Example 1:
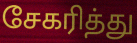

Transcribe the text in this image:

சேகரித்து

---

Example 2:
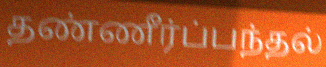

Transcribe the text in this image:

தண்ணீர்ப்பந்தல்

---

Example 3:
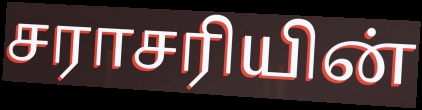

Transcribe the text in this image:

சராசரியின்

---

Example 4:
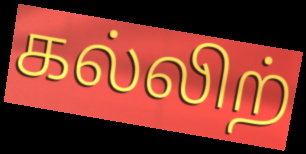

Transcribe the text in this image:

கல்லிற்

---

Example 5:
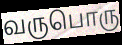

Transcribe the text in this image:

வருபொரு